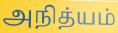
அநித்யம்